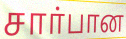
சார்பான